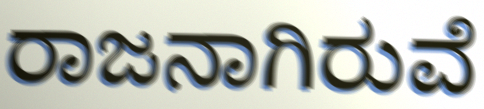
ರಾಜನಾಗಿರುವೆ